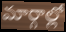
మార్గాల్లో